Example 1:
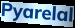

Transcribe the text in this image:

Pyarelal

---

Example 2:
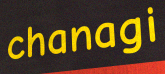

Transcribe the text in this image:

chanagi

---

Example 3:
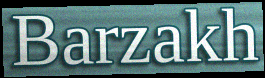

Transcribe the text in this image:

Barzakh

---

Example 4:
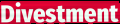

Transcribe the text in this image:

Divestment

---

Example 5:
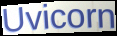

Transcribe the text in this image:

Uvicorn